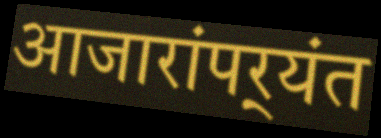
आजारांपर्यंत